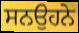
ਸਨਉਹਨੇ